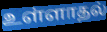
உள்ளாதல்